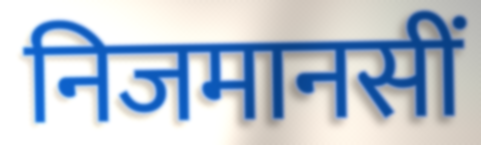
निजमानसीं